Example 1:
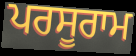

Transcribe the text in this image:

ਪਰਸੂਰਾਮ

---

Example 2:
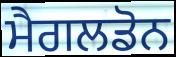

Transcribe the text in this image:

ਮੈਗਲਡੋਨ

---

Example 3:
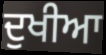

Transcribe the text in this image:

ਦੁਖੀਆ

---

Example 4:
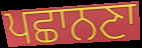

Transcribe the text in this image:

ਪਛਾਨਣਾ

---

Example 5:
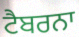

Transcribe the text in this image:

ਟੈਬਰਨਾ